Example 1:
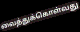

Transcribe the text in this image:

வைத்துக்கொள்வது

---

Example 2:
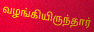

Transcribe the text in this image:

வழங்கியிருந்தார்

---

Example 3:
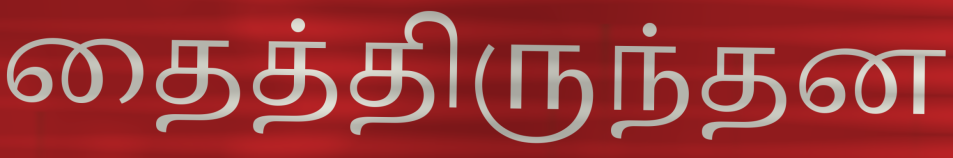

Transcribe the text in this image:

தைத்திருந்தன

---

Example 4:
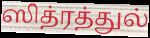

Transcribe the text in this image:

ஸித்ரத்துல்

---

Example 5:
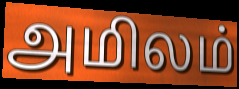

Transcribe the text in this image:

அமிலம்